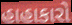
હાહાકારો